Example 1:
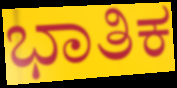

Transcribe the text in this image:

ಭಾತಿಕ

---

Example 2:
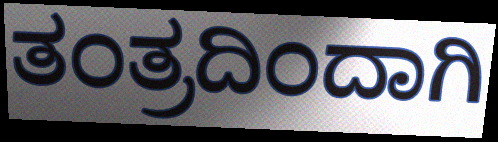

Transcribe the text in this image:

ತಂತ್ರದಿಂದಾಗಿ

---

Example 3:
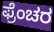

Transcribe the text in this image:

ಫ್ರೆಂಚರ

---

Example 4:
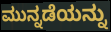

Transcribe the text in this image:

ಮುನ್ನಡೆಯನ್ನು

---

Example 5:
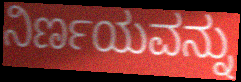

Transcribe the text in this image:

ನಿರ್ಣಯವನ್ನು